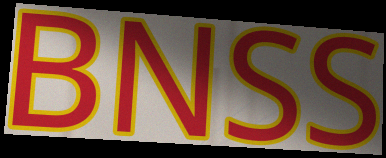
BNSS